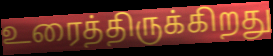
உரைத்திருக்கிறது